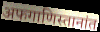
अफगाणिस्तानांत